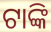
ଟାଙ୍କି